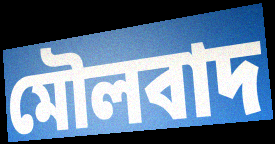
মৌলবাদ